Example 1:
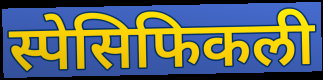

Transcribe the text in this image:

स्पेसिफिकली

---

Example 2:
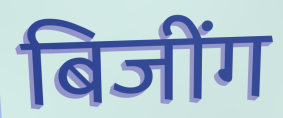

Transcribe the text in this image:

बिजींग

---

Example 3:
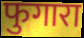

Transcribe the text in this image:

फुगारा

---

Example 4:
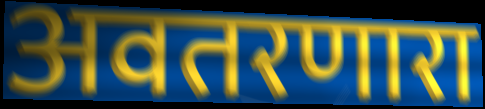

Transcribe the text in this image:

अवतरणारा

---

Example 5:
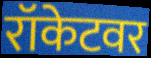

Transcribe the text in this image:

रॉकेटवर